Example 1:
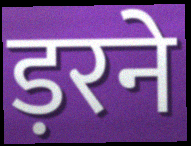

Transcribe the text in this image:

ड़रने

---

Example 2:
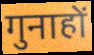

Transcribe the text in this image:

गुनाहों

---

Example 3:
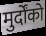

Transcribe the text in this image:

मुर्दोंको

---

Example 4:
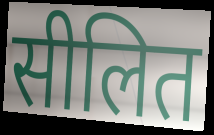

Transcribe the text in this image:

सीलित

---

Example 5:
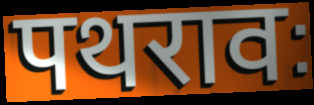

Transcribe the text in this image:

पथरावः